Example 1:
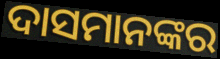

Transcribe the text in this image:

ଦାସମାନଙ୍କର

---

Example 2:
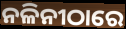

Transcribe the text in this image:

ନଳିନୀଠାରେ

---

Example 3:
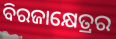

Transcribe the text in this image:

ବିରଜାକ୍ଷେତ୍ରର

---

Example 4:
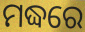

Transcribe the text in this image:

ମଦ୍ଧରେ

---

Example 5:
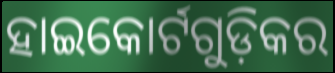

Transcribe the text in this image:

ହାଇକୋର୍ଟଗୁଡ଼ିକର